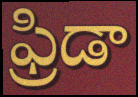
ఫ్రిడా